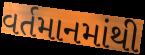
વર્તમાનમાંથી